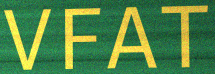
VFAT